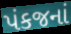
પંકજનાં